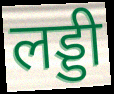
लड्डी